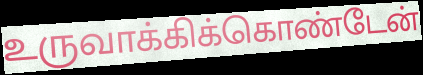
உருவாக்கிக்கொண்டேன்